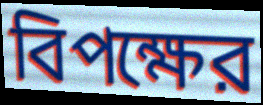
বিপক্ষের